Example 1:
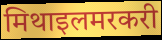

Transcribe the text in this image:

मिथाइलमरकरी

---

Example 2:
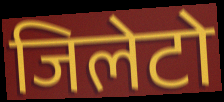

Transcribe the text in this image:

जिलेटो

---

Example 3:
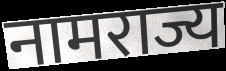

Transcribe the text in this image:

नामराज्य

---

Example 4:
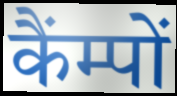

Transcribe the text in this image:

कैंम्पों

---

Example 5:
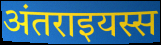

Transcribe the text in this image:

अंतराइयस्स